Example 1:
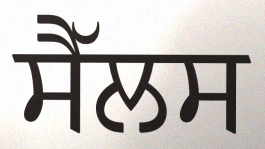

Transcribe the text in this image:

ਸੈੱਲਸ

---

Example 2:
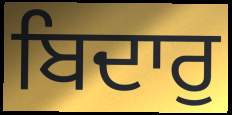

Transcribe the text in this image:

ਬਿਦਾਰੁ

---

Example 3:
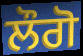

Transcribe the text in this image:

ਲੌਗੋ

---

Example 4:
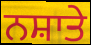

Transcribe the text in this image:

ਨਸ਼ਾਤੇ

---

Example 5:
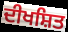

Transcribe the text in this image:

ਦੀਖਸ਼ਿਤ